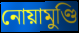
নোয়ামুণ্ডি